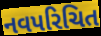
નવપરિચિત